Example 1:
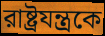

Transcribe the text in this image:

রাষ্ট্রযন্ত্রকে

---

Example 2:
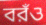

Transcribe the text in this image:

বরঁও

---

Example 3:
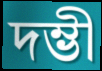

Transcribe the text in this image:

দম্ভী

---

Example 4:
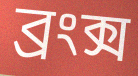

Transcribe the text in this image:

ব্রংক্স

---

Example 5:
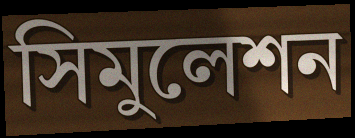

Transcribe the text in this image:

সিমুলেশন